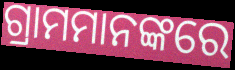
ଗ୍ରାମମାନଙ୍କରେ